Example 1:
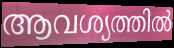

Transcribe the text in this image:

ആവശ്യത്തിൽ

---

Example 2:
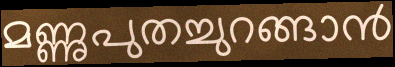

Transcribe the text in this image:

മണ്ണുപുതച്ചുറങ്ങാൻ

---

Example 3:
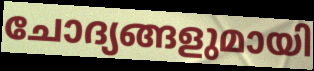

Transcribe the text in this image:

ചോദ്യങ്ങളുമായി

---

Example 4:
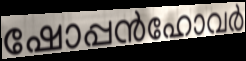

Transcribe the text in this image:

ഷോപ്പൻഹോവർ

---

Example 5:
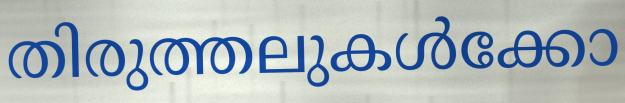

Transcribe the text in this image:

തിരുത്തലുകൾക്കോ